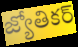
జ్యోతికర్